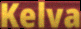
Kelva